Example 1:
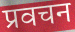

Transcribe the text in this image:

प्रवचन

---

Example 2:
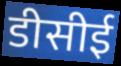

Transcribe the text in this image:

डीसीई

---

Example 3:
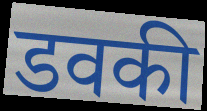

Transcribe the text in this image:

डवकी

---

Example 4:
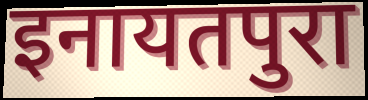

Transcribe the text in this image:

इनायतपुरा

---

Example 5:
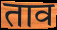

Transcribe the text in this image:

ताव